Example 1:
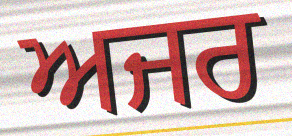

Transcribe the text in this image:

ਅਜਰ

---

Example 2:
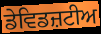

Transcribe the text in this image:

ਡੇਵਿਡਜ਼ਟੀਅ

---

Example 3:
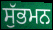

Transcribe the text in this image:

ਸੁੱਭਮਨ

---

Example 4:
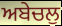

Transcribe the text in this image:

ਅਬੇਚਲੁ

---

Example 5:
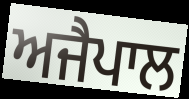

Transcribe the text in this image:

ਅਜੈਪਾਲ